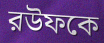
রউফকে